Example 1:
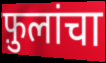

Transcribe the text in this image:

फ़ुलांचा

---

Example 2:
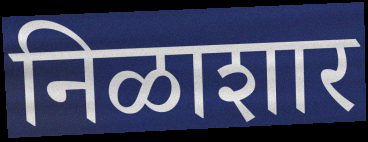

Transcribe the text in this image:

निळाशार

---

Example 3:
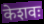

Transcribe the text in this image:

केशवः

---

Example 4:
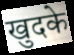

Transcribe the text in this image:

खुदके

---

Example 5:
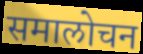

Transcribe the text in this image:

समालोचन